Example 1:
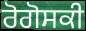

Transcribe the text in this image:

ਰੋਗੋਸਕੀ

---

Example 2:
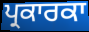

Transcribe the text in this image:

ਪ੍ਰਕਾਰਕਾ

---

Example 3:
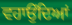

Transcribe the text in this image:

ਵਹਾਉਂਦਿਆਂ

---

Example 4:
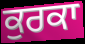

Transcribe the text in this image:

ਕੁਰਕਾ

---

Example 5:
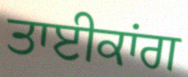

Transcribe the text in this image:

ਤਾਈਕਾਂਗ